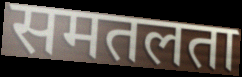
समतलता